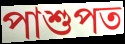
পাশুপত